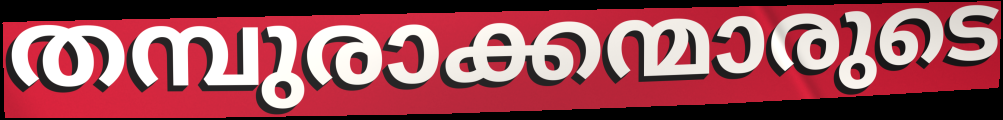
തമ്പുരാക്കന്മാരുടെ